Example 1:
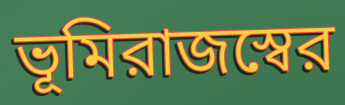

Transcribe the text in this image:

ভূমিরাজস্বের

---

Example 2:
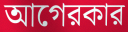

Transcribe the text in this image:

আগেরকার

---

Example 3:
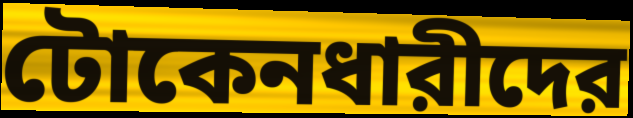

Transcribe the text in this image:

টোকেনধারীদের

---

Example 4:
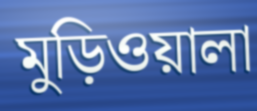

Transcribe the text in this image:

মুড়িওয়ালা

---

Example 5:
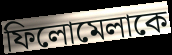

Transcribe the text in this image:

ফিলোমেলাকে